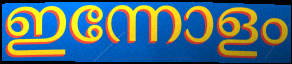
ഇന്നോളം